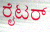
ರೈಟರ್